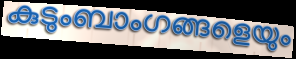
കുടുംബാംഗങ്ങളെയും